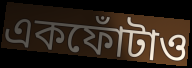
একফোঁটাও